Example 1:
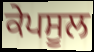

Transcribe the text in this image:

ਕੇਪਸੂਲ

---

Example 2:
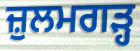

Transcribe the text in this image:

ਜ਼ੁਲਮਗੜ੍ਹ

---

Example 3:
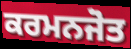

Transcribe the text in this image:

ਕਰਮਨਜੋਤ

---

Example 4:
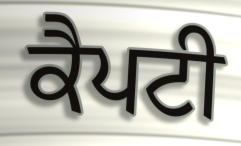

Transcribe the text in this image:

ਕੈਪਟੀ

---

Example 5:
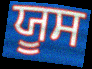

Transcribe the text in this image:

ਯੂਸ